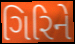
ગિરિને